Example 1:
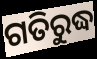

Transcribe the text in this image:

ଗତିରୁଦ୍ଧ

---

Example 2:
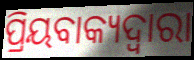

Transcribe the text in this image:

ପ୍ରିୟବାକ୍ୟଦ୍ୱାରା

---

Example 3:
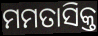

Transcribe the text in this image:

ମମତାସିକ୍ତ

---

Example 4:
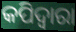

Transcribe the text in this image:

କପିଦ୍ୱାରା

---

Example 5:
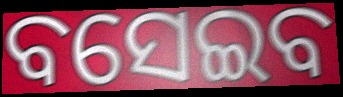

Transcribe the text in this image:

ବସେଇବ